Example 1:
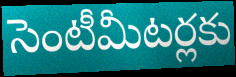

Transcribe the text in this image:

సెంటీమీటర్లకు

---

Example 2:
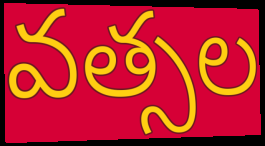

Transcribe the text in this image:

వత్సల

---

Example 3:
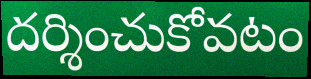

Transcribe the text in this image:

దర్శించుకోవటం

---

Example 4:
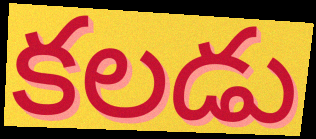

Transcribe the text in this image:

కలడు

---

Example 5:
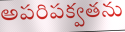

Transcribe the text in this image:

అపరిపక్వతను